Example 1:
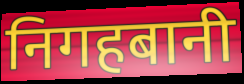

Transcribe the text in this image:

निगहबानी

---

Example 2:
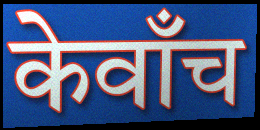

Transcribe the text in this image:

केवाँच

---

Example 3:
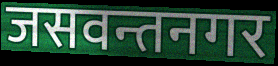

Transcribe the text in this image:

जसवन्तनगर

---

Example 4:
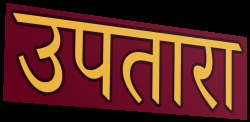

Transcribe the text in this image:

उपतारा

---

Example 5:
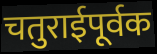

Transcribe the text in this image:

चतुराईपूर्वक